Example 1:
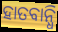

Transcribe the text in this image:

ହାତବାନ୍ଧି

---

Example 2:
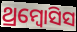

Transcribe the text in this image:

ଥ୍ରମ୍ବୋସିସ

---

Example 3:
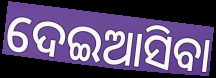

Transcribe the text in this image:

ଦେଇଆସିବା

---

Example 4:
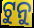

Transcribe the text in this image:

ଟୁନୁ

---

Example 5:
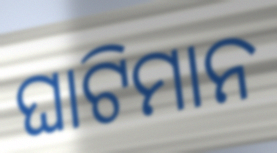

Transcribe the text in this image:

ଘାଟିମାନ